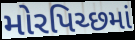
મોરપિચ્છમાં